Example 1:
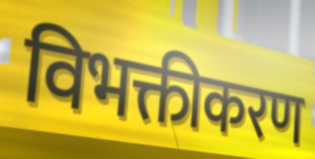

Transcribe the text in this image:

विभक्तीकरण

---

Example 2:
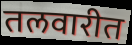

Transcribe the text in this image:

तलवारीत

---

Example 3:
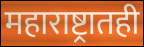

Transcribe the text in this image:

महाराष्ट्रातही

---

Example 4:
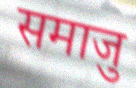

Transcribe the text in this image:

समाजु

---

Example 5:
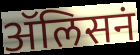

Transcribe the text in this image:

ॲलिसनं